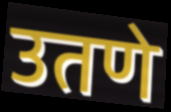
उतणे